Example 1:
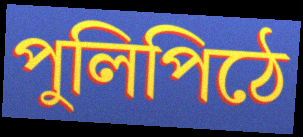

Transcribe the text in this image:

পুলিপিঠে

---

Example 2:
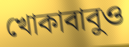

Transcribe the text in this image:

খোকাবাবুও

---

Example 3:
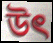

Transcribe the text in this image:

উৎ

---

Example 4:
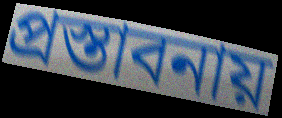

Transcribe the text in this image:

প্রস্তাবনায়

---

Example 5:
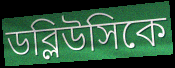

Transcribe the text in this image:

ডব্লিউসিকে